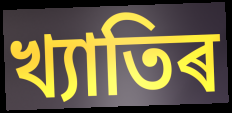
খ্যাতিৰ